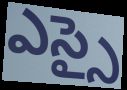
ఎస్సై